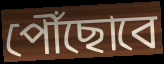
পৌঁছোবে